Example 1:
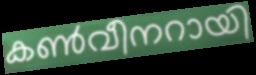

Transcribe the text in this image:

കൺവീനറായി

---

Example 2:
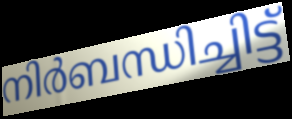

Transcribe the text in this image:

നിർബന്ധിച്ചിട്ട്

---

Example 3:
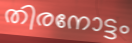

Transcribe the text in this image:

തിരനോട്ടം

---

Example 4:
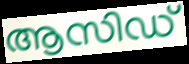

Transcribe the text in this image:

ആസിഡ്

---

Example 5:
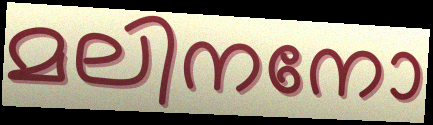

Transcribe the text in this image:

മലിനനോ